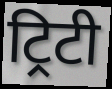
ट्रिटी